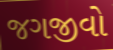
જગજીવો